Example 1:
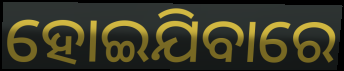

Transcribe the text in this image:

ହୋଇଯିବାରେ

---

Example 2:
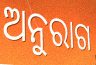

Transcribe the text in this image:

ଅନୁରାଗ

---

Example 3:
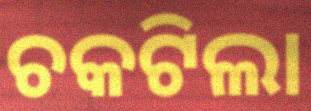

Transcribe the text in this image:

ଚକଟିଲା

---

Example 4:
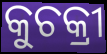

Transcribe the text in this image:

କୁଚକ୍ରୀ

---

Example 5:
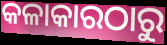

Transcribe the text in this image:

କଳାକାରଠାରୁ